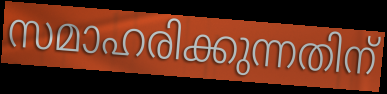
സമാഹരിക്കുന്നതിന്